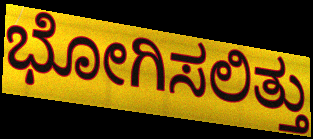
ಭೋಗಿಸಲಿತ್ತು